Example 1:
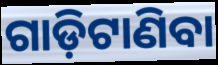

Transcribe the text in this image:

ଗାଡ଼ିଟାଣିବା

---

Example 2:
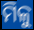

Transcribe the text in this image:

ମିଳୁ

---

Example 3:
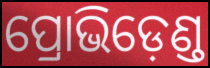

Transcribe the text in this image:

ପ୍ରୋଭିଡ଼େଣ୍ଡ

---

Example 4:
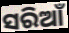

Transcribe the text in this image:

ସରିଆଁ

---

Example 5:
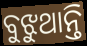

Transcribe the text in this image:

ବୁଝୁଥାନ୍ତି